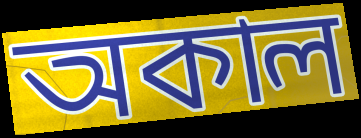
অকাল